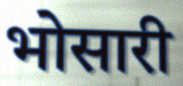
भोसारी